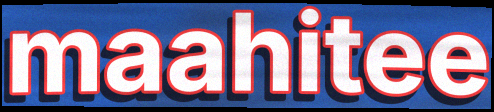
maahitee